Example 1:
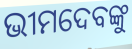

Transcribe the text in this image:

ଭୀମଦେବଙ୍କୁ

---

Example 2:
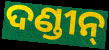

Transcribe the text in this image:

ଦଣ୍ଡୀନ୍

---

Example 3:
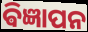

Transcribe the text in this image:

ଵିଜ୍ଞାପନ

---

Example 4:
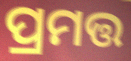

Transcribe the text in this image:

ପ୍ରମତ୍ତ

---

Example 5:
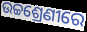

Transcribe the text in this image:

ଉଚ୍ଚଶ୍ରେଣୀରେ